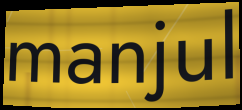
manjul